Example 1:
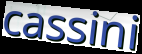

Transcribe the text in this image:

cassini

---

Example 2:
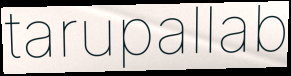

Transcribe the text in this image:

tarupallab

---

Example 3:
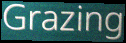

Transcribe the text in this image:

Grazing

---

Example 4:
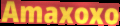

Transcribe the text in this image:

Amaxoxo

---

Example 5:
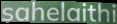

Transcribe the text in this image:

sahelaithi